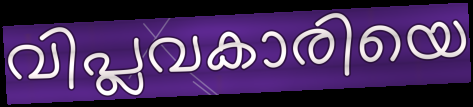
വിപ്ലവകാരിയെ